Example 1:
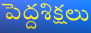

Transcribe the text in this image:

పెద్దశిక్షలు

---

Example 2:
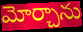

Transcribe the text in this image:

మోర్చాను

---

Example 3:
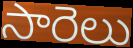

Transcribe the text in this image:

సారెలు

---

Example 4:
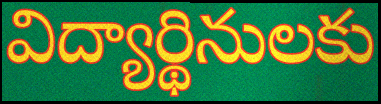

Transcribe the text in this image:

విద్యార్థినులకు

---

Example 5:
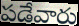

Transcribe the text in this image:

పడేవారు